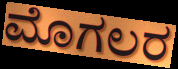
ಮೊಗಲರ